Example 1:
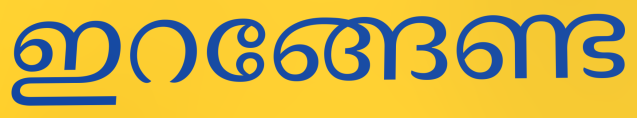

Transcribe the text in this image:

ഇറങ്ങേണ്ട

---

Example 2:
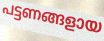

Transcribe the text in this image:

പട്ടണങ്ങളായ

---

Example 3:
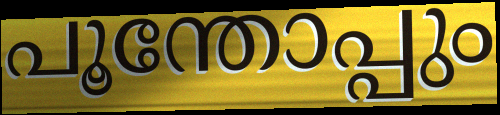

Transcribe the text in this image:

പൂന്തോപ്പും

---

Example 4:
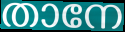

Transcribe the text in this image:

താനേ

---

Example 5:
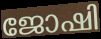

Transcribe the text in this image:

ജോഷി